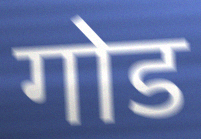
गोड